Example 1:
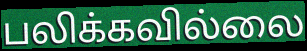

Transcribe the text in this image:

பலிக்கவில்லை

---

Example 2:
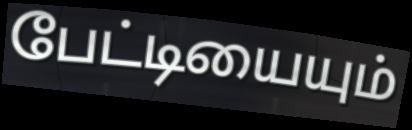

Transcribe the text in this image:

பேட்டியையும்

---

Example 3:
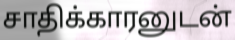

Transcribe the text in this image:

சாதிக்காரனுடன்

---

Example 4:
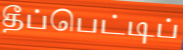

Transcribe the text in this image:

தீப்பெட்டிப்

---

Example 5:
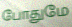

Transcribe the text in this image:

போதுமே